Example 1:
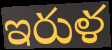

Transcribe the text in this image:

ఇరుళ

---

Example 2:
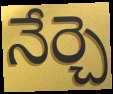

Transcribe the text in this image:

నేర్చె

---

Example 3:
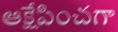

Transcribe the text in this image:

ఆక్షేపించగా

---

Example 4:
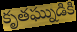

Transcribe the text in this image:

కృతఘ్నుడికి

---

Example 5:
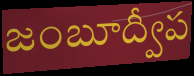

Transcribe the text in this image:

జంబూద్వీప